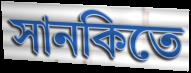
সানকিতে